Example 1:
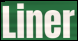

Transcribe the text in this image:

Liner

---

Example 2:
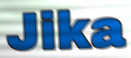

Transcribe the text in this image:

Jika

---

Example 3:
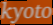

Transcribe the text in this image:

kyoto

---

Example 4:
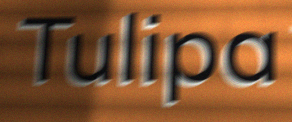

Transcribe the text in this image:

Tulipa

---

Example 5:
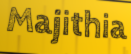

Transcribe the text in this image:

Majithia